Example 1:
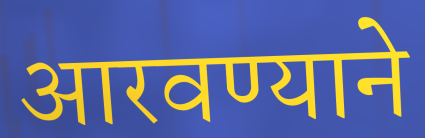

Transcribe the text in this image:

आरवण्याने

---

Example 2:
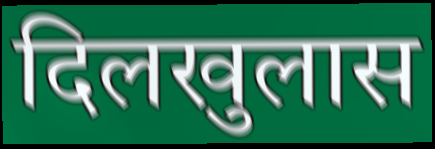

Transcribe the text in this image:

दिलखुलास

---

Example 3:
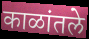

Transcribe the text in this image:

काळांतले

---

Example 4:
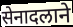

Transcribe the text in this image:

सेनादलाने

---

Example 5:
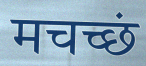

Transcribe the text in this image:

मचच्छं